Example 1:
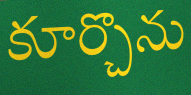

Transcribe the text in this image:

కూర్చొను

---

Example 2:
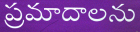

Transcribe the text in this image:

ప్రమాదాలను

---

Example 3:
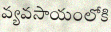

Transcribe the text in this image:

వ్యవసాయంలోకి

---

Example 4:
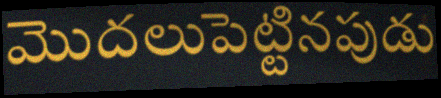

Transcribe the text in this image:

మొదలుపెట్టినపుడు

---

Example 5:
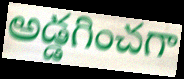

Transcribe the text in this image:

అడ్డగించగా